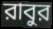
রাবুর